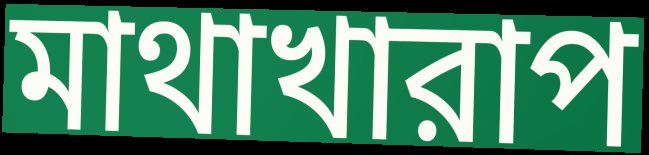
মাথাখারাপ